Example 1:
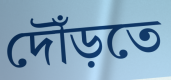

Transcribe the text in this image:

দৌঁড়তে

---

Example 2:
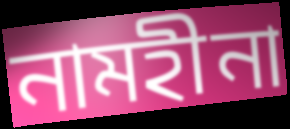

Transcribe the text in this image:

নামহীনা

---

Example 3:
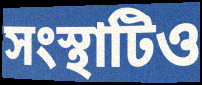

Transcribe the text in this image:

সংস্থাটিও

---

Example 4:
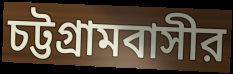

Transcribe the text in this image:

চট্টগ্রামবাসীর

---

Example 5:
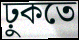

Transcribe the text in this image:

ঢ়ুকতে